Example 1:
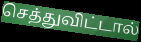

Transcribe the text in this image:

செத்துவிட்டால்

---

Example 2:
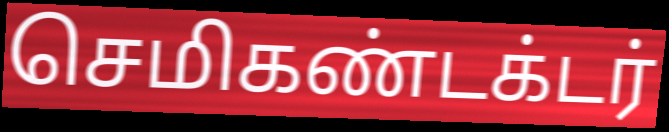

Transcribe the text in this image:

செமிகண்டக்டர்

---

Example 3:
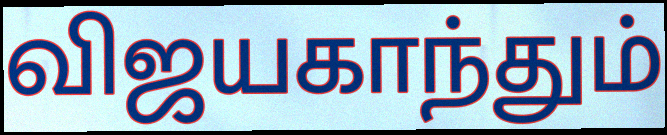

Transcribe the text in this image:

விஜயகாந்தும்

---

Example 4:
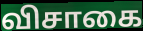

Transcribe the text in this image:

விசாகை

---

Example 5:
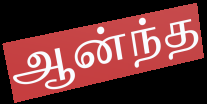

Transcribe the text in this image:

ஆன்ந்த